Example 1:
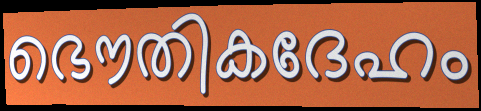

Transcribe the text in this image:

ഭൌതികദേഹം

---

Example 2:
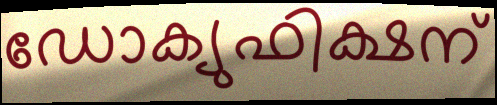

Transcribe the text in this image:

ഡോക്യുഫിക്ഷന്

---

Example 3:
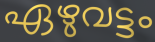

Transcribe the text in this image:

ഏഴുവട്ടം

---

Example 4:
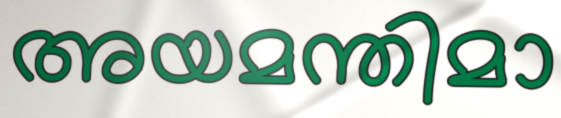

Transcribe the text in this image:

അയമന്തിമാ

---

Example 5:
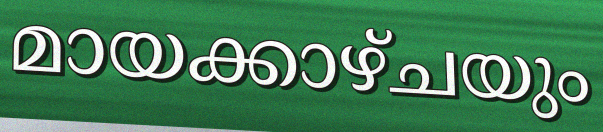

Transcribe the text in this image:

മായക്കാഴ്ചയും